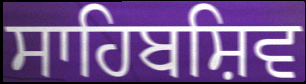
ਸਾਹਿਬਸ਼ਿਵ